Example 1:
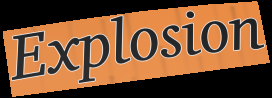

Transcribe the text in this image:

Explosion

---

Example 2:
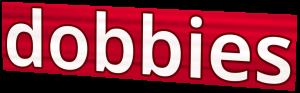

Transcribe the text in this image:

dobbies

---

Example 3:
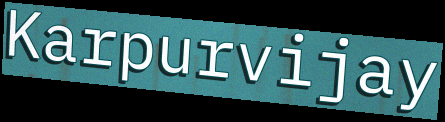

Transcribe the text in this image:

Karpurvijay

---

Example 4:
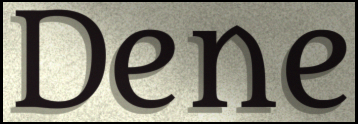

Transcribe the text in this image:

Dene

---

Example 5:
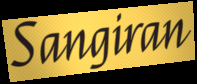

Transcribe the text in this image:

Sangiran